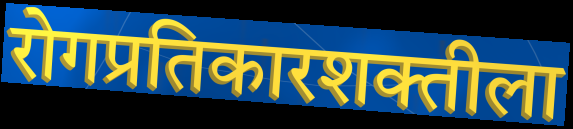
रोगप्रतिकारशक्तीला